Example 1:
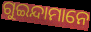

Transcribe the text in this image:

ଗୁଇନ୍ଦାମାନେ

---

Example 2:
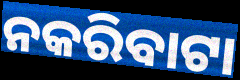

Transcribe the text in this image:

ନକରିବାଟା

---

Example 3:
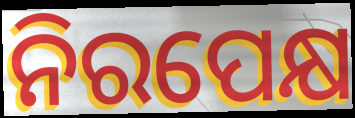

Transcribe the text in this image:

ନିରପେକ୍ଷ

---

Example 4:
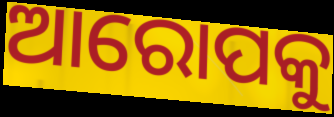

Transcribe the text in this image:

ଆରୋପକୁ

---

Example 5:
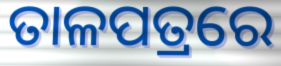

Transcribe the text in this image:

ତାଳପତ୍ରରେ